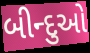
બીન્દુઓ